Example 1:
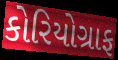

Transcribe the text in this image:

કોરિયોગ્રાફ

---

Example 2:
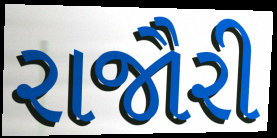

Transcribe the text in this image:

રાજૌરી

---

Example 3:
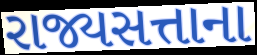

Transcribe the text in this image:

રાજ્યસત્તાના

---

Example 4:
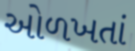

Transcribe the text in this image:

ઓળખતાં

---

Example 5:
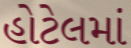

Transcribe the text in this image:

હોટેલમાં